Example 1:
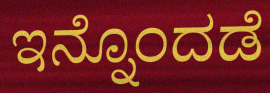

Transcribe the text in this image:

ಇನ್ನೊಂದಡೆ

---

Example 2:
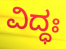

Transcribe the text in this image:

ವಿದ್ಧಃ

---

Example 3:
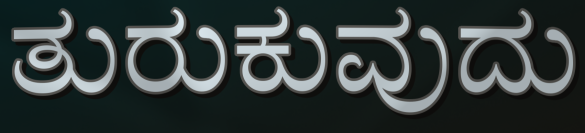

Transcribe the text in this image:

ತುರುಕುವುದು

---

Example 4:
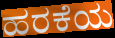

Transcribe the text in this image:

ಹರಕೆಯ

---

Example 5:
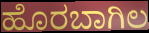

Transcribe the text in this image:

ಹೊರಬಾಗಿಲ